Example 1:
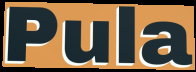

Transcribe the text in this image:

Pula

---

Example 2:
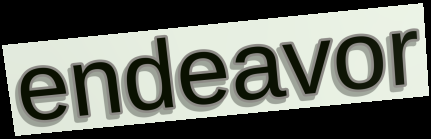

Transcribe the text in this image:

endeavor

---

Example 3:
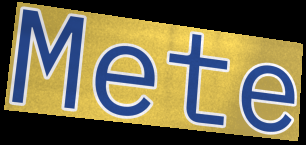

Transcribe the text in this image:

Mete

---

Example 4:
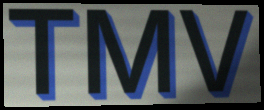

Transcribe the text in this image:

TMV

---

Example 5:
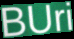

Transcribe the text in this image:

BUri